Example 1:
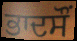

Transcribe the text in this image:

ਭਾਦਸੌਂ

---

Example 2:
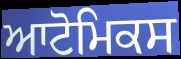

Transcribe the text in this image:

ਆਟੋਮਿਕਸ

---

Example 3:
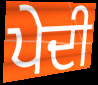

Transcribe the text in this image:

ਪੇਦੀ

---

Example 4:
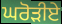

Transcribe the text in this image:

ਘਰੋੜੀਏ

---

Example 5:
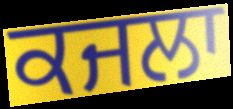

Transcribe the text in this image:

ਕਜਲਾ